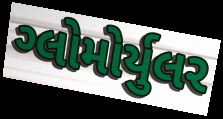
ગ્લોમોર્યુલર